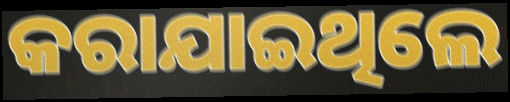
କରାଯାଇଥିଲେ